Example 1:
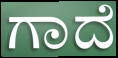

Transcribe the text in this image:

ಗಾದೆ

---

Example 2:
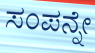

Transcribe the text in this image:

ಸಂಪನ್ನೇ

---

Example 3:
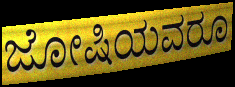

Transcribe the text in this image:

ಜೋಷಿಯವರೂ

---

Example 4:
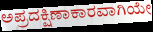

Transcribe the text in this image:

ಅಪ್ರದಕ್ಷಿಣಾಕಾರವಾಗಿಯೇ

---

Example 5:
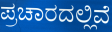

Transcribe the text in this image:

ಪ್ರಚಾರದಲ್ಲಿವೆ